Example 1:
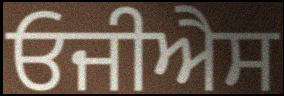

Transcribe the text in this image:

ਓਜੀਐਸ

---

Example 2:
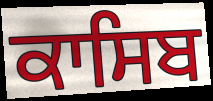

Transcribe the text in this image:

ਕਾਸਿਬ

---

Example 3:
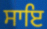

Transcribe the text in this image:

ਸਾਇ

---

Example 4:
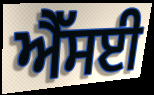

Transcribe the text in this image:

ਐੱਸਈ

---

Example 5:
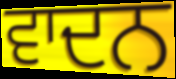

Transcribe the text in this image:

ਵਾਦਨ